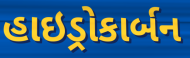
હાઇડ્રોકાર્બન